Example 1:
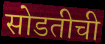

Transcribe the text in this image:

सोडतीची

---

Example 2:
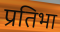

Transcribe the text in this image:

प्रतिभा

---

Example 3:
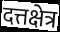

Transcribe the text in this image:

दत्तक्षेत्र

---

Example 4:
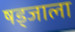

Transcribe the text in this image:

षड्जाला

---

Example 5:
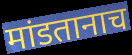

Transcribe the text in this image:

मांडतानाच